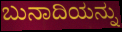
ಬುನಾದಿಯನ್ನು